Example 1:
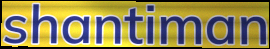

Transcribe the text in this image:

shantiman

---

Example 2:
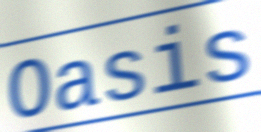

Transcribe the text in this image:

Oasis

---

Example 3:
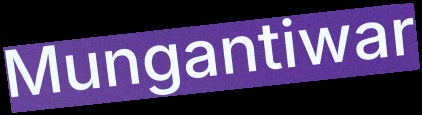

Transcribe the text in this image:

Mungantiwar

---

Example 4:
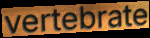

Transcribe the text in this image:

vertebrate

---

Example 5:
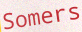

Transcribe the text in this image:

Somers